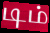
டிம்